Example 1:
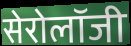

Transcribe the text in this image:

सेरोलॉजी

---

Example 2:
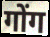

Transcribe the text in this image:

गोंग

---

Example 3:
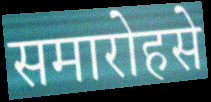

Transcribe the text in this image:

समारोहसे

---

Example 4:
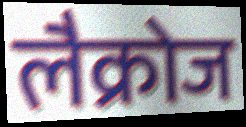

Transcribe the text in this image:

लैक्रोज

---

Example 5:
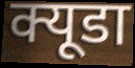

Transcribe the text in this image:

क्यूडा